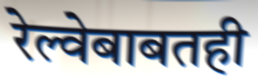
रेल्वेबाबतही